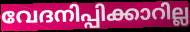
വേദനിപ്പിക്കാറില്ല